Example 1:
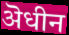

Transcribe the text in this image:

ऄधीन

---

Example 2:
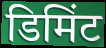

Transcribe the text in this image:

डिमिंट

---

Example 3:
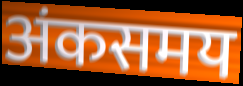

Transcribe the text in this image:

अंकसमय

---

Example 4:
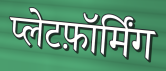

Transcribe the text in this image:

प्लेटफ़ॉर्मिंग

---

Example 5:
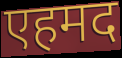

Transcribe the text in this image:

एहमद